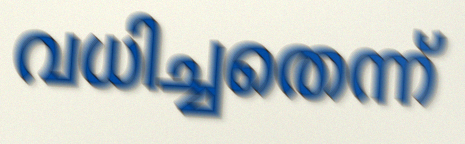
വധിച്ചതെന്ന്